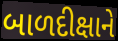
બાળદીક્ષાને